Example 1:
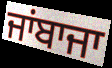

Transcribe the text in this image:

ਜਾਂਬਾਜਾ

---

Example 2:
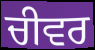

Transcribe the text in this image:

ਚੀਵਰ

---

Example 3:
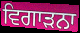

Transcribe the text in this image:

ਵਿਗਾੜਨਾ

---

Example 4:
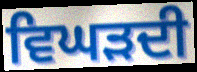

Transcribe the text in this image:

ਵਿਘੜਦੀ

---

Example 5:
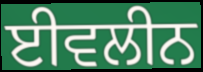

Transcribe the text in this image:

ਈਵਲੀਨ